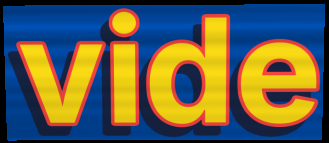
vide